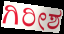
ಗಿರೀಶ